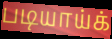
படியாய்க்